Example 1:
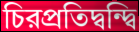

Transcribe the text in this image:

চিরপ্রতিদ্বন্দ্বি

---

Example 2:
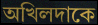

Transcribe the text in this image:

অখিলদাকে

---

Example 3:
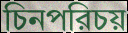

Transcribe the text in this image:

চিনপরিচয়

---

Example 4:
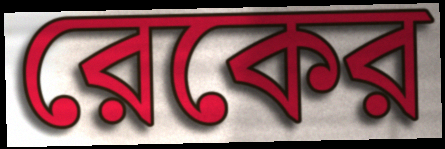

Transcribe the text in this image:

রেকের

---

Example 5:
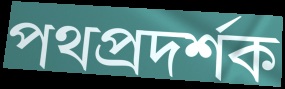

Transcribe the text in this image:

পথপ্রদর্শক